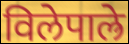
विलेपाल्रे